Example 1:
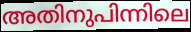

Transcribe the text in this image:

അതിനുപിന്നിലെ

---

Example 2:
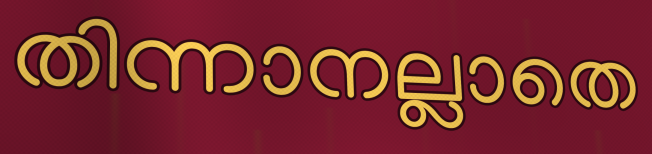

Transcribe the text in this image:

തിന്നാനല്ലാതെ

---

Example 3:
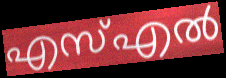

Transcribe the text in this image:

എസ്എൽ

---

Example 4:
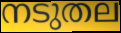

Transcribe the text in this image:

നടുതല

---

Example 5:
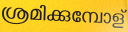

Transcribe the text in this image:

ശ്രമിക്കുമ്പോള്